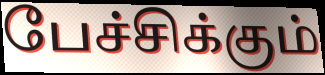
பேச்சிக்கும்